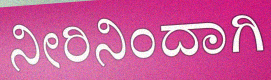
ನೀರಿನಿಂದಾಗಿ